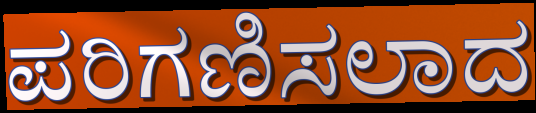
ಪರಿಗಣಿಸಲಾದ